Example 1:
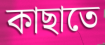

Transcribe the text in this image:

কাছাতে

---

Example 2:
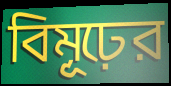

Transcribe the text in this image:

বিমূঢ়ের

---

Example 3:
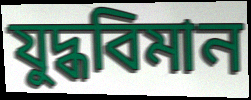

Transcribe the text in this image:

যুদ্ধবিমান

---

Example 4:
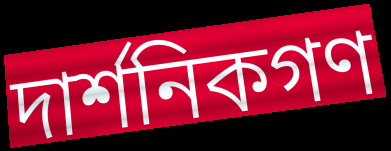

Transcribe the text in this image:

দার্শনিকগণ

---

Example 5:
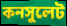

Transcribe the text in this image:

কনসুলেট